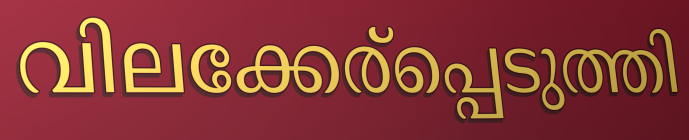
വിലക്കേര്പ്പെടുത്തി